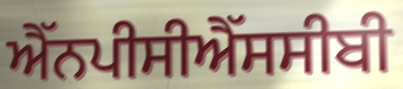
ਐੱਨਪੀਸੀਐੱਸਸੀਬੀ